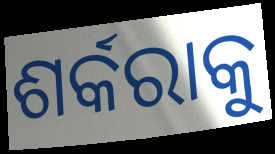
ଶର୍କରାକୁ